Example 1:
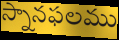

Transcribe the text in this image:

స్నానఫలము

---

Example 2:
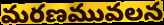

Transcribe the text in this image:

మరణమువలన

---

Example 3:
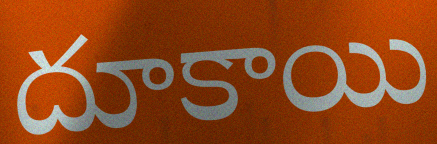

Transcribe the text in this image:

దూకాయి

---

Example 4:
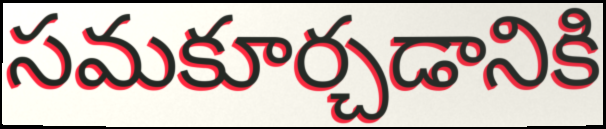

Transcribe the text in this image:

సమకూర్చడానికి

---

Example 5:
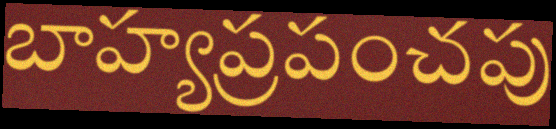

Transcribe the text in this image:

బాహ్యప్రపంచపు